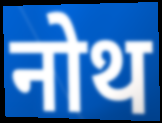
नोथ